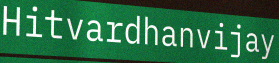
Hitvardhanvijay